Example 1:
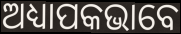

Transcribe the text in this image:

ଅଧ୍ୟାପକଭାବେ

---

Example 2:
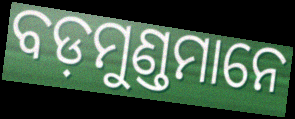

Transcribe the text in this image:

ବଡ଼ମୁଣ୍ଡମାନେ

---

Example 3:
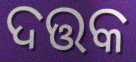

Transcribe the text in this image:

ଦତ୍ତକ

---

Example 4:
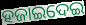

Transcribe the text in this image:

ହଜାଇଦେଇ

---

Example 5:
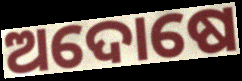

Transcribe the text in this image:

ଅଦୋଷେ